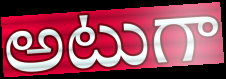
అటుగా